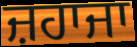
ਜ਼ਹਾਜਾ